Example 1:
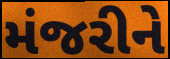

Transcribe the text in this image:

મંજરીને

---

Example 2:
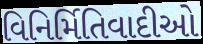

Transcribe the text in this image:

વિનિર્મિતિવાદીઓ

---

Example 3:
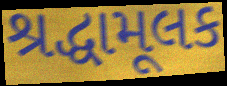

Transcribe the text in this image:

શ્રદ્ધામૂલક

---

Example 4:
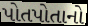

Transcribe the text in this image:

પોતપોતાનો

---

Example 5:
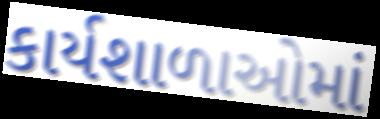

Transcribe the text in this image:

કાર્યશાળાઓમાં